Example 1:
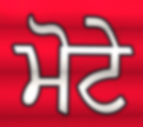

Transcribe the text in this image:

ਮੋਟੇ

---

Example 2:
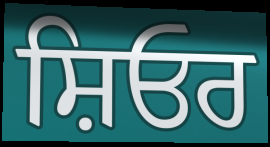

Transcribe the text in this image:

ਸ਼ਿਓਰ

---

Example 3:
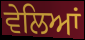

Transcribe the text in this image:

ਵੇਲਿਆਂ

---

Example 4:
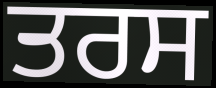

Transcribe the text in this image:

ਤਰਸ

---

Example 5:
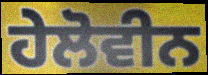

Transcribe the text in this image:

ਹੇਲੋਵੀਨ